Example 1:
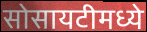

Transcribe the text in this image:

सोसायटीमध्ये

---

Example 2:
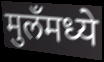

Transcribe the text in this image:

मुलँमध्ये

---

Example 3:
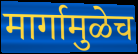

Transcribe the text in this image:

मार्गामुळेच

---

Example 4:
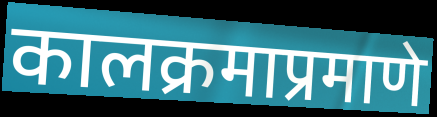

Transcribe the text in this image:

कालक्रमाप्रमाणे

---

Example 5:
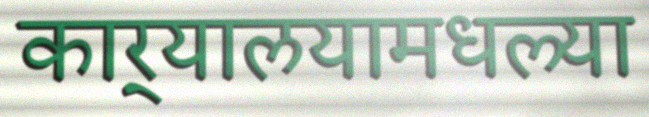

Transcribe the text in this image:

कार्यालयामधल्या